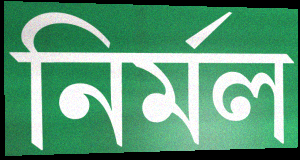
নিৰ্মল